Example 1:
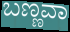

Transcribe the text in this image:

ಬಣ್ಣವಾ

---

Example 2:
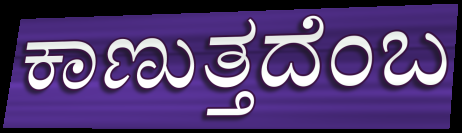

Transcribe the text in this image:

ಕಾಣುತ್ತದೆಂಬ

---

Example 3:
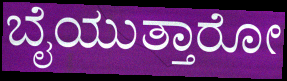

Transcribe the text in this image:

ಬೈಯುತ್ತಾರೋ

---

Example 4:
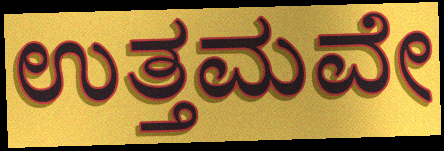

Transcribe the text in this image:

ಉತ್ತಮವೇ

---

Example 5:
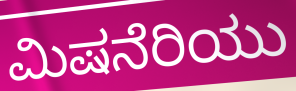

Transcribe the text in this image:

ಮಿಷನೆರಿಯು